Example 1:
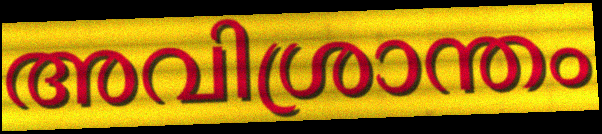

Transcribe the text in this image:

അവിശ്രാന്തം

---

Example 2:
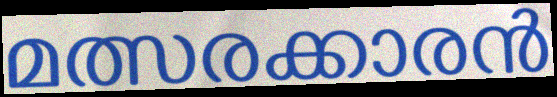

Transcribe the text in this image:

മത്സരക്കാരൻ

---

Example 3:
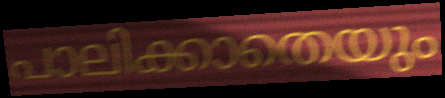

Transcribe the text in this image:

പാലിക്കാതെയും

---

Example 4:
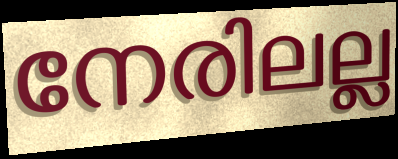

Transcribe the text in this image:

നേരിലല്ല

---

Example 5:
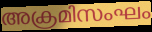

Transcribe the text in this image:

അക്രമിസംഘം